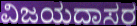
ವಿಜಯದಾಸರ